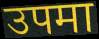
उपमा